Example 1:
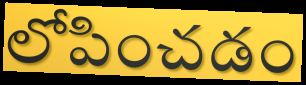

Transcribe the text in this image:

లోపించడం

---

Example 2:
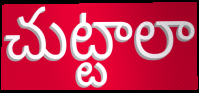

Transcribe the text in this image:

చుట్టాలా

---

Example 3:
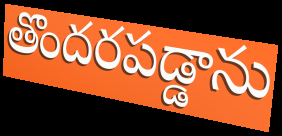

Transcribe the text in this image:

తొందరపడ్డాను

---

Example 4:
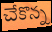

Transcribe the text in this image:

చేకొన్న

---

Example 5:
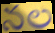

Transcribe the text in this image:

నల